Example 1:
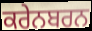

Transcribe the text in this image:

ਕਰੇਨਬਰਨ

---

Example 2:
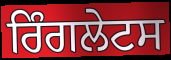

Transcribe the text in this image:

ਰਿੰਗਲੇਟਸ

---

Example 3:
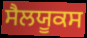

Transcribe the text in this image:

ਸੈਲਯੂਕਸ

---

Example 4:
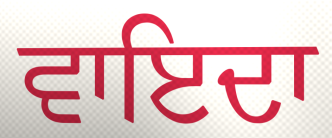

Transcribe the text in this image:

ਵਾਇਦਾ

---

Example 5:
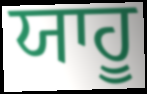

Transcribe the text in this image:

ਯਾਹੂ